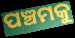
ପଞ୍ଚମକୁ